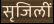
सृजिलीं